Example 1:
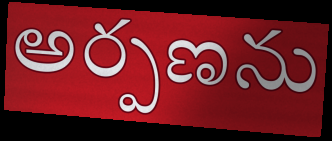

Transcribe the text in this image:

అర్పణను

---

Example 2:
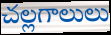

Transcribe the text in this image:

చల్లగాలులు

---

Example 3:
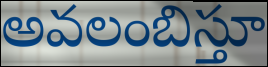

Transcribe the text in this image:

అవలంబిస్తూ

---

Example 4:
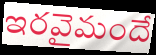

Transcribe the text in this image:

ఇరవైమందే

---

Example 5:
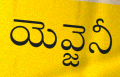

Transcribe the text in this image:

యెవ్జెనీ